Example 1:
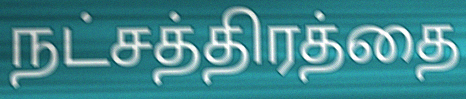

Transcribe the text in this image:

நட்சத்திரத்தை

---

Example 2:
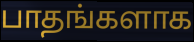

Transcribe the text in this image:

பாதங்களாக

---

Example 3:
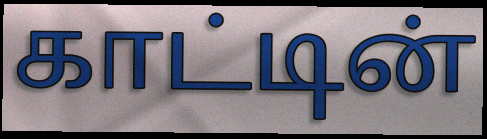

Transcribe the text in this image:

காட்டின்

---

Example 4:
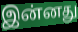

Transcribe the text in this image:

இன்னது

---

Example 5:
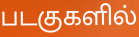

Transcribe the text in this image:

படகுகளில்